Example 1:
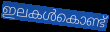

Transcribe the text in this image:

ഇലകൾകൊണ്ട്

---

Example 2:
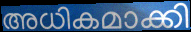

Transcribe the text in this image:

അധികമാക്കി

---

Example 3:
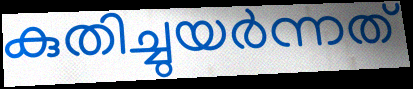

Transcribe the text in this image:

കുതിച്ചുയർന്നത്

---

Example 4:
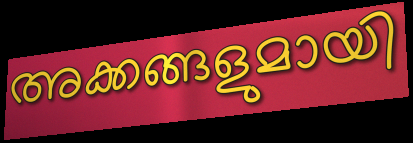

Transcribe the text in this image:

അക്കങ്ങളുമായി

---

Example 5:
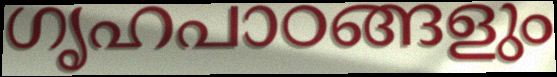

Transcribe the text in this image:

ഗൃഹപാഠങ്ങളും